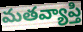
మతవ్యాప్తి